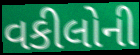
વકીલોની